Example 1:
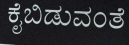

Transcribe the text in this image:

ಕೈಬಿಡುವಂತೆ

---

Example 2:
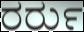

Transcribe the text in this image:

ರರ್ರು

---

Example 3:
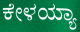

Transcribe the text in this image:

ಕೇಳಯ್ಯಾ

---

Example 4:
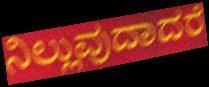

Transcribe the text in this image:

ನಿಲ್ಲುವುದಾದರೆ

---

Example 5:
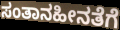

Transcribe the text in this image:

ಸಂತಾನಹೀನತೆಗೆ